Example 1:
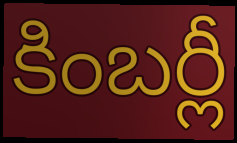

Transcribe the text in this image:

కింబర్లీ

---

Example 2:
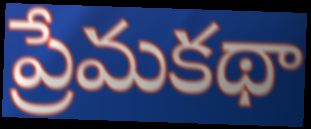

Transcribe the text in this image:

ప్రేమకథా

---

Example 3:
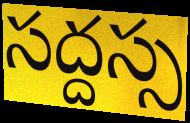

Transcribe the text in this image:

సద్దస్స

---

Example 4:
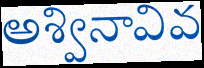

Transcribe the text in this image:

అశ్వినావివ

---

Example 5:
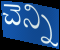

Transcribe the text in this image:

చెన్ని